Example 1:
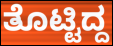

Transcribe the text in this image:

ತೊಟ್ಟಿದ್ದ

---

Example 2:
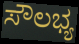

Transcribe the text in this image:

ಸೌಲಭ್ಯ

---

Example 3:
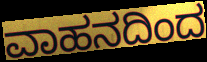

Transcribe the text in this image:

ವಾಹನದಿಂದ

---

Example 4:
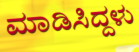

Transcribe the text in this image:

ಮಾಡಿಸಿದ್ದಳು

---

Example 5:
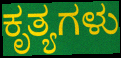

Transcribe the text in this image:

ಕೃತ್ಯಗಳು